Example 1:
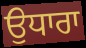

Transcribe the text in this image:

ਉਧਾਰਾ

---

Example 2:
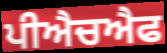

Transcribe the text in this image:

ਪੀਐਚਐਫ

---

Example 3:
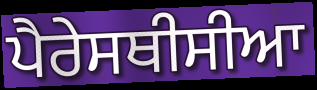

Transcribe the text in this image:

ਪੈਰੇਸਥੀਸੀਆ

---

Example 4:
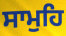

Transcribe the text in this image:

ਸਾਮੁਹਿ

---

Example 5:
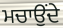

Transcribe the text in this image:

ਮਚਾਉਂਦੇ